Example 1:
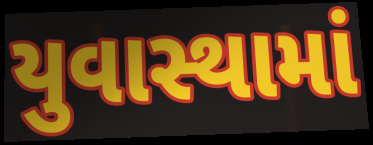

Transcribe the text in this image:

યુવાસ્થામાં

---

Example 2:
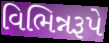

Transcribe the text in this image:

વિભિન્નરૂપે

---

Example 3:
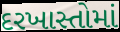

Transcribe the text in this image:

દરખાસ્તોમાં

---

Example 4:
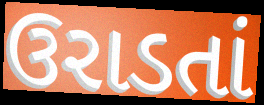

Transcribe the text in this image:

ઉરાડતાં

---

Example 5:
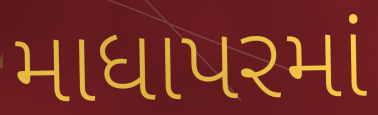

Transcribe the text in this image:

માધાપરમાં